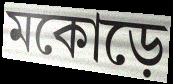
মকোড়ে